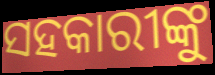
ସହକାରୀଙ୍କୁ